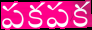
పకపక